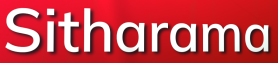
Sitharama